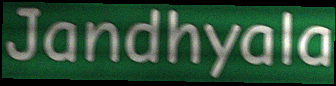
Jandhyala